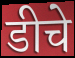
डीचे